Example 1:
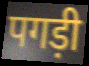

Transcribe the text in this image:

पगड़ी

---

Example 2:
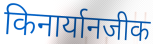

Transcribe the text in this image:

किनार्यानजीक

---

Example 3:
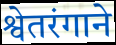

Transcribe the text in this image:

श्वेतरंगाने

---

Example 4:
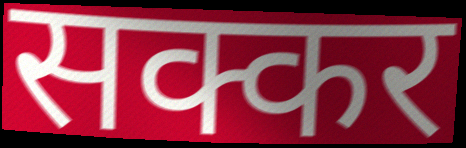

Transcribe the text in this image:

सक्कर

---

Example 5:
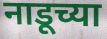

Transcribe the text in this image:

नाडूच्या